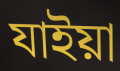
যাইয়া